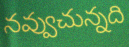
నవ్వుచున్నది